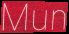
Mun